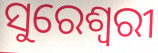
ସୁରେଶ୍ଵରୀ